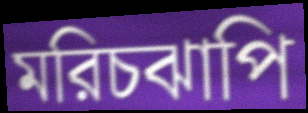
মরিচঝাপি